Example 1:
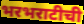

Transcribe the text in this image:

भरभराटीची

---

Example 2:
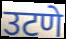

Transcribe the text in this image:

उटणे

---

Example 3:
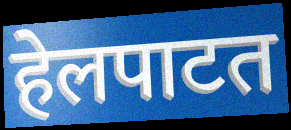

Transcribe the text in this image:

हेलपाटत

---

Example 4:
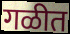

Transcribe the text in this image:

गळीत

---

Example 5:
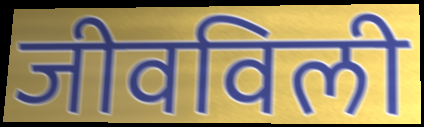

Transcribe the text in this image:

जीवविली